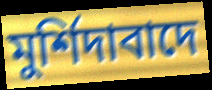
মুর্শিদাবাদে